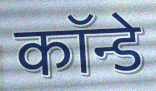
कॉन्डे